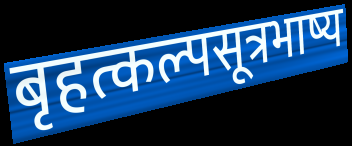
बृहत्कल्पसूत्रभाष्य